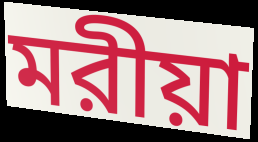
মরীয়া